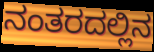
ನಂತರದಲ್ಲಿನ